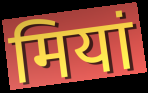
मियां